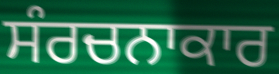
ਸੰਰਚਨਾਕਾਰ